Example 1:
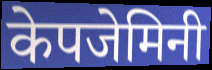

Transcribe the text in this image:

केपजेमिनी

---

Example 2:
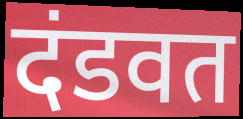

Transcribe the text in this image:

दंडवत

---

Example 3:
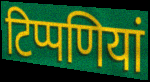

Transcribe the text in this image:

टिप्‍पणियां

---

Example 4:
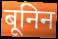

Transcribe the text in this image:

बूनिन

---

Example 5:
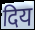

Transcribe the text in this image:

दिय